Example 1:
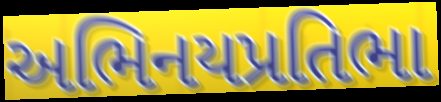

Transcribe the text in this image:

અભિનયપ્રતિભા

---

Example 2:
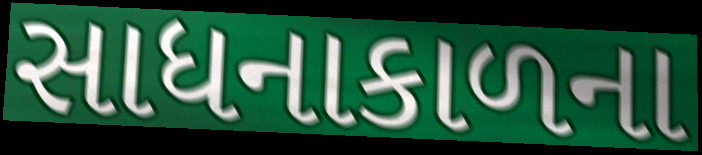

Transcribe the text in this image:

સાધનાકાળના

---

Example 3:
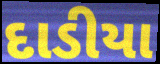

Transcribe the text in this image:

દાડીયા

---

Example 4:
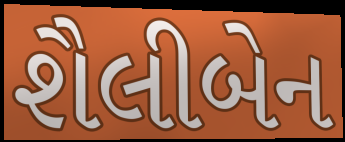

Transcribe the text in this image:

શૈલીબેન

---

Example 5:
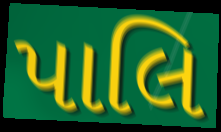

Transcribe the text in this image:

પાલિ